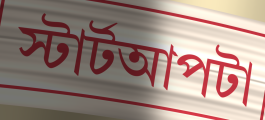
স্টার্টআপটা